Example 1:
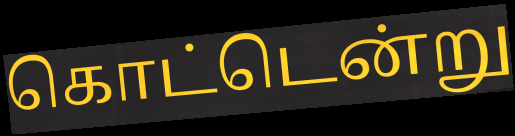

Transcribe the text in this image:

கொட்டென்று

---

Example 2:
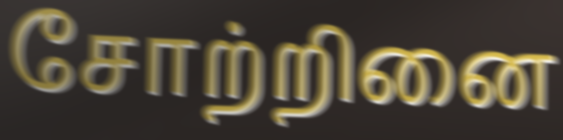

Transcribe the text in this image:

சோற்றினை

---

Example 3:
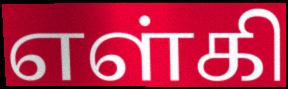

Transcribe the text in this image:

எள்கி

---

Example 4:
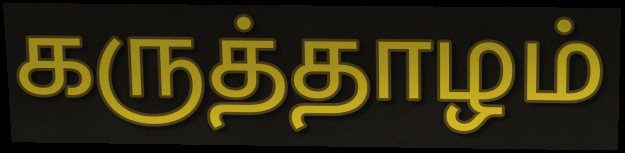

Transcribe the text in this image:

கருத்தாழம்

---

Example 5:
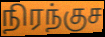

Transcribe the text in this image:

நிரந்குச